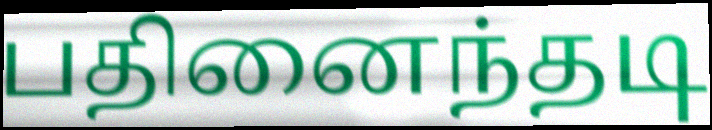
பதினைந்தடி